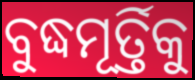
ବୁଦ୍ଧମୂର୍ତ୍ତିକୁ